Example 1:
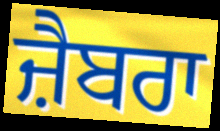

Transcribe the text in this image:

ਜ਼ੈਬਰਾ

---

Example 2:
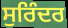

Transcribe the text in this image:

ਸੁਰਿੰਦਰ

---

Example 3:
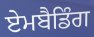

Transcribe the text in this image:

ਏਮਬੈਡਿੰਗ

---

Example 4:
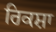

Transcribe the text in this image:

ਰਿਕਸ਼ਾ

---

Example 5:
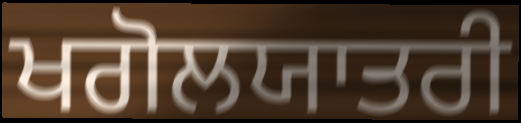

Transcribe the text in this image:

ਖਗੋਲਯਾਤਰੀ